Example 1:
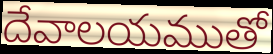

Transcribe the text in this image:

దేవాలయముతో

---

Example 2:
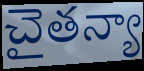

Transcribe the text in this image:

చైతన్యా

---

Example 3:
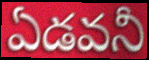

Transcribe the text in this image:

ఏడవనీ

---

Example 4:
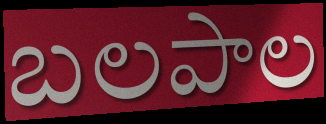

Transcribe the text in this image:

బలపాల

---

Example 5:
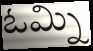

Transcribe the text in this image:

ఓమ్ని